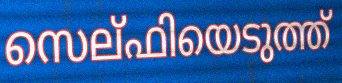
സെല്ഫിയെടുത്ത്